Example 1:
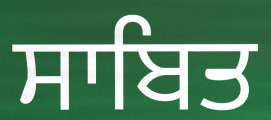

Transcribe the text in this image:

ਸਾਬਿਤ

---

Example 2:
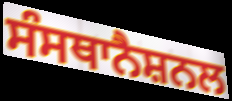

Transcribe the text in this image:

ਸੰਸਥਾਨੈਸ਼ਨਲ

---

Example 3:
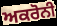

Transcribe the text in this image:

ਅਕਰੋਨੀ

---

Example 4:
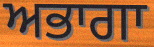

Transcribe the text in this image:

ਅਭਾਗਾ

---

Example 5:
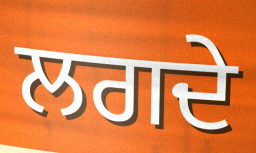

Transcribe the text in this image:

ਲਗਦੇ